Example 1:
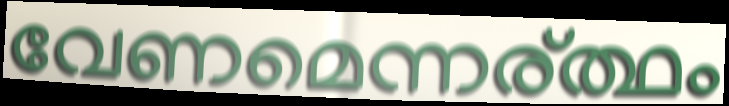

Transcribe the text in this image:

വേണമെന്നര്ത്ഥം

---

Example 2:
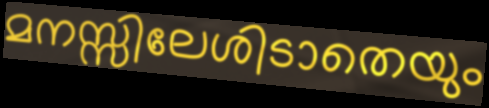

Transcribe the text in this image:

മനസ്സിലേശിടാതെയും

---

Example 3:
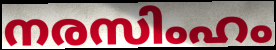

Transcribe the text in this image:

നരസിംഹം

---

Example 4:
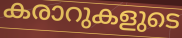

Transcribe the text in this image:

കരാറുകളുടെ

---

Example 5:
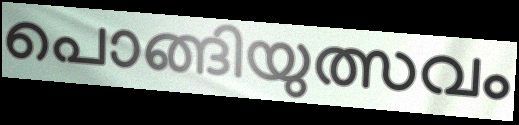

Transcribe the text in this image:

പൊങ്ങിയുത്സവം